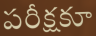
పరీక్షకూ